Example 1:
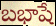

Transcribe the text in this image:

బభాషే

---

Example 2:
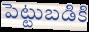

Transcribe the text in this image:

పెట్టుబడికి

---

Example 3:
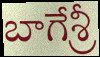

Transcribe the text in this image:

బాగేశ్రీ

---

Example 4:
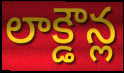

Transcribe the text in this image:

లాక్డౌన్ల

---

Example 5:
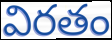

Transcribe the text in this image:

విరతం